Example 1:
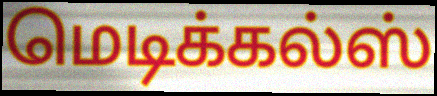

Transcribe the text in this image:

மெடிக்கல்ஸ்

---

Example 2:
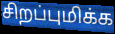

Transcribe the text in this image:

சிறப்புமிக்க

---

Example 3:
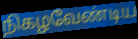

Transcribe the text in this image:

நிகழவேண்டிய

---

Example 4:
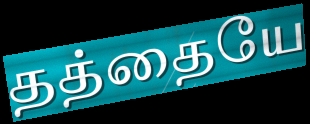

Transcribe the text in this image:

தத்தையே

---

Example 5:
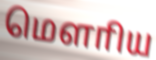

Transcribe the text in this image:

மௌரிய